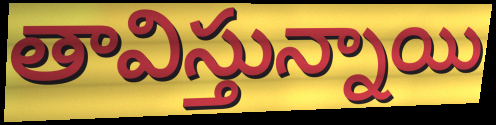
తావిస్తున్నాయి